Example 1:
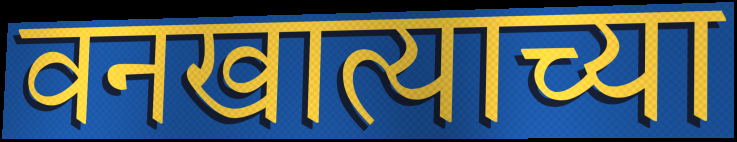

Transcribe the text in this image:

वनखात्याच्या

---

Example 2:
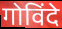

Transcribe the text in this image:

गोविंदे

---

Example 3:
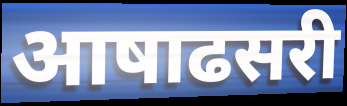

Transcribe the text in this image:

आषाढसरी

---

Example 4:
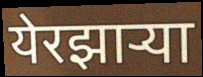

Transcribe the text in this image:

येरझार्‍या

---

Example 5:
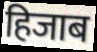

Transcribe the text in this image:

हिजाब